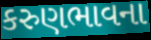
કરુણભાવના